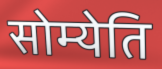
सोम्येति